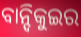
ବାନ୍ଦିକୁଇର